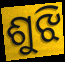
ଶୁଝି